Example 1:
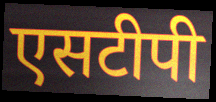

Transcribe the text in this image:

एसटीपी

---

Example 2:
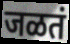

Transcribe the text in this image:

जळतं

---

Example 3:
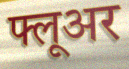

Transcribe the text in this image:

फ्लूअर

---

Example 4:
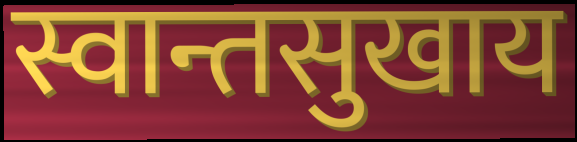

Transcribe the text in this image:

स्वान्तसुखाय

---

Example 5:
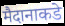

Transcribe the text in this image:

मैदानाकडे